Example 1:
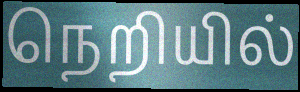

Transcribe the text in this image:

நெறியில்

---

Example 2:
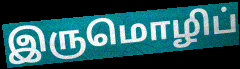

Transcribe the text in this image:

இருமொழிப்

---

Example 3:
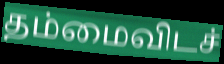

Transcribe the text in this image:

தம்மைவிடச்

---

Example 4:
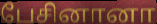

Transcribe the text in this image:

பேசினானா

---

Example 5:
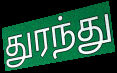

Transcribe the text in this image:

துரந்து